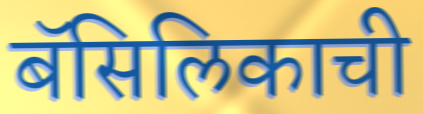
बॅसिलिकाची